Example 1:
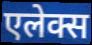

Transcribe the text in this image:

एलेक्स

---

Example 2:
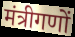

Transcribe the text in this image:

मंत्रीगणों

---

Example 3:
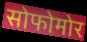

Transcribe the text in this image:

सोफोमोर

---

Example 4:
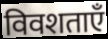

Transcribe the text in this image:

विवशताएँ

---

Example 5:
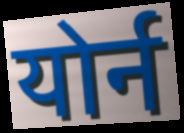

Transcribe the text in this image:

योर्न